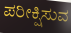
ಪರೀಕ್ಷಿಸುವ